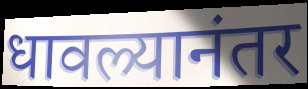
धावल्यानंतर